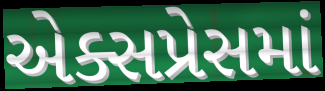
એક્સપ્રેસમાં